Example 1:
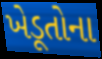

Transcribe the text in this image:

ખેડૂતોના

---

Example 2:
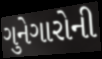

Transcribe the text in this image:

ગુનેગારોની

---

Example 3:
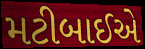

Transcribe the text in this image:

મટીબાઈએ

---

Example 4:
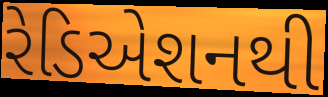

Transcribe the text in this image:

રેડિએશનથી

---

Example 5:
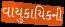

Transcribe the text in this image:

વાયુકાયિકની